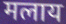
मलाय